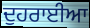
ਦੁਹਰਾਈਆ